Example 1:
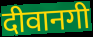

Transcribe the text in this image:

दीवानगी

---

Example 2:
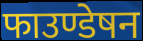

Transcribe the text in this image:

फाउण्डेषन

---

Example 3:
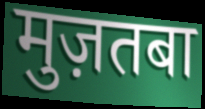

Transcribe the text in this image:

मुज़तबा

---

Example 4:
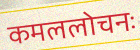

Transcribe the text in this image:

कमललोचनः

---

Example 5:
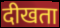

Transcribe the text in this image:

दीखता